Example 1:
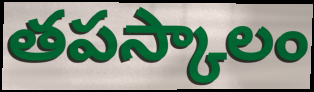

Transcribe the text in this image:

తపస్కాలం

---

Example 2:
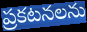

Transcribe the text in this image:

ప్రకటనలను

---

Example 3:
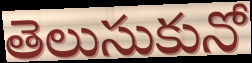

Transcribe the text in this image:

తెలుసుకునో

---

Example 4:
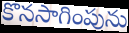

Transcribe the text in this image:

కొనసాగింపును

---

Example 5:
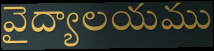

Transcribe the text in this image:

వైద్యాలయము